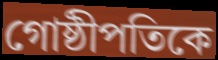
গোষ্ঠীপতিকে